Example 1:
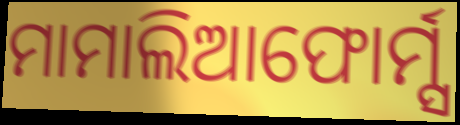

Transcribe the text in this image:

ମାମାଲିଆଫୋର୍ମ୍ସ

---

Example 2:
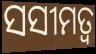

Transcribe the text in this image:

ସସୀମତ୍ୱ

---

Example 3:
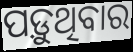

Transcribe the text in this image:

ପଡ଼ୁଥିବାର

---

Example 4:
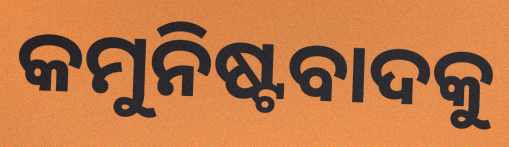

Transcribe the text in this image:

କମୁନିଷ୍ଟବାଦକୁ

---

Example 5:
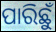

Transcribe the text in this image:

ପାରିଛୁଁ